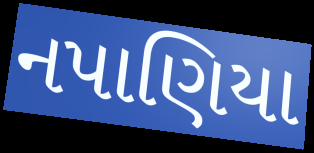
નપાણિયા